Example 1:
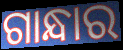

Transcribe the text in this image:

ଗାନ୍ଧାର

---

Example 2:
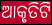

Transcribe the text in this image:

ଆକୃତିଟି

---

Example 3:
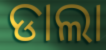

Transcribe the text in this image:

ଡାଲା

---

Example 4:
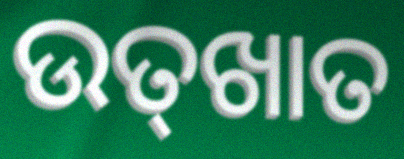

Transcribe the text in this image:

ଉତ୍‌ଖାତ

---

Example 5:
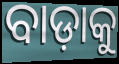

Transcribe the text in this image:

ବାଡ଼ାକୁ